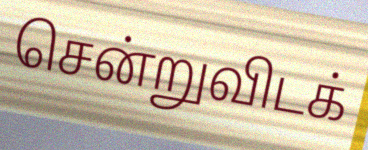
சென்றுவிடக்